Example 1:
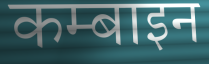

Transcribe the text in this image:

कम्बाइन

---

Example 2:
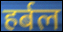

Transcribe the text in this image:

हर्बल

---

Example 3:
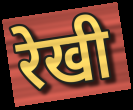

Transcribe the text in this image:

रेखी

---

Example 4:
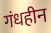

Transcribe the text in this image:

गंधहीन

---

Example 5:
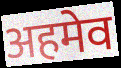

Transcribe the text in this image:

अहमेव